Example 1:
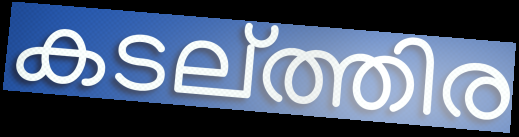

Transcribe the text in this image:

കടല്ത്തിര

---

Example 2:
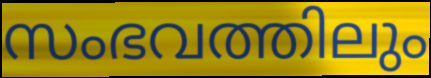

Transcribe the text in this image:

സംഭവത്തിലും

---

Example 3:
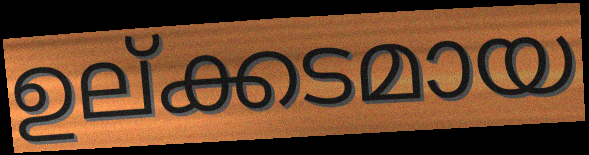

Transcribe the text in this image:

ഉല്ക്കടമായ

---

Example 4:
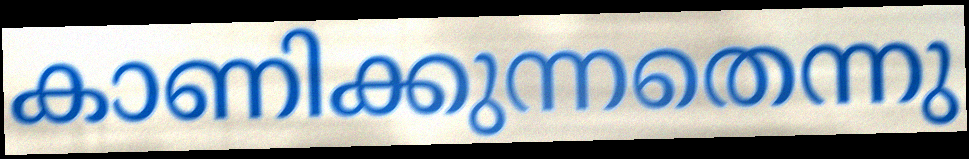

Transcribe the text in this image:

കാണിക്കുന്നതെന്നു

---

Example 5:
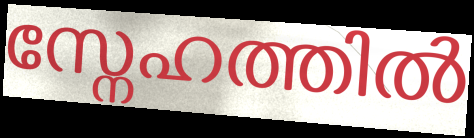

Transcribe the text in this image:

സ്നേഹത്തിൽ